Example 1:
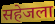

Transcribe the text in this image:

सहेजला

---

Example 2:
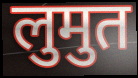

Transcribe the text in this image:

लुमुत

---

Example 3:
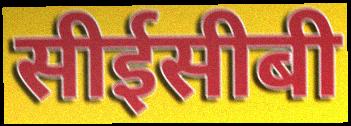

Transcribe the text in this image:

सीईसीबी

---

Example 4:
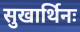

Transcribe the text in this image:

सुखार्थिनः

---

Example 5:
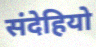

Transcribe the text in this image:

संदेहियो